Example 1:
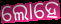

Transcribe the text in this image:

ଲୋହେ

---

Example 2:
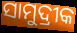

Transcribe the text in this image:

ସାମୁଦ୍ରୀକ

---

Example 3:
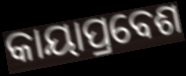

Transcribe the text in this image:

କାୟାପ୍ରବେଶ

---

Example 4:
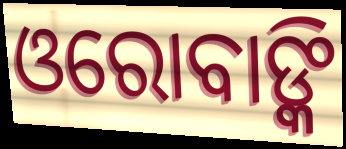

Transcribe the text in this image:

ଓରୋବାଙ୍କି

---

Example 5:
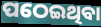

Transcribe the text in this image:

ପଠେଇଥିବା